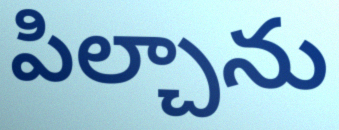
పిల్చాను